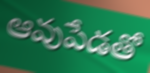
ఆవుపేడతో